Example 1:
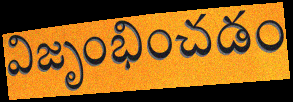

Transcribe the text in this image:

విజృంభించడం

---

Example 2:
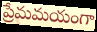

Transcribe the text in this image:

ప్రేమమయంగా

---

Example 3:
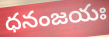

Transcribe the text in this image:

ధనంజయః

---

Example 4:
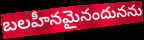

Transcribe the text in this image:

బలహీనమైనందునను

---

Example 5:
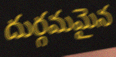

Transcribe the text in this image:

దుర్గమమైన